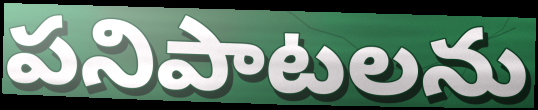
పనిపాటలను